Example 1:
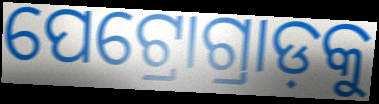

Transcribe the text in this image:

ପେଟ୍ରୋଗ୍ରାଡ଼କୁ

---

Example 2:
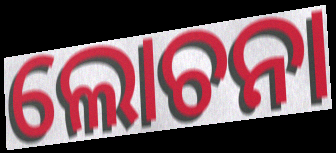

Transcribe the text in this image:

ଲୋଚନା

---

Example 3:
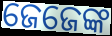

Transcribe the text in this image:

ଜେଜେଙ୍କ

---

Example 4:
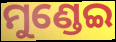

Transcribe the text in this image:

ମୁଣ୍ଡେଇ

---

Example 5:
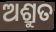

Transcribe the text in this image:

ଅଶ୍ରୁତ